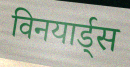
विनयार्ड्स